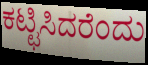
ಕಟ್ಟಿಸಿದರೆಂದು